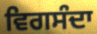
ਵਿਗਸੰਦਾ